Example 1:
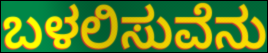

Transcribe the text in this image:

ಬಳಲಿಸುವೆನು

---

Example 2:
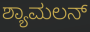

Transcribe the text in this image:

ಶ್ಯಾಮಲನ್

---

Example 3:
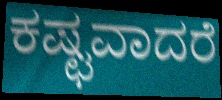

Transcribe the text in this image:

ಕಷ್ಟವಾದರೆ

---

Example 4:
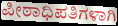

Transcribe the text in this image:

ಪೀಠಾಧಿಪತಿಗಳಾಗಿ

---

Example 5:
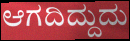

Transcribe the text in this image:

ಆಗದಿದ್ದುದು